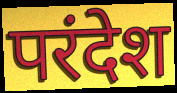
परंदेश